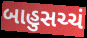
બાહુસચ્ચં